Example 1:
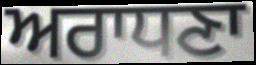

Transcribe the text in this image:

ਅਰਾਧਣਾ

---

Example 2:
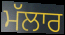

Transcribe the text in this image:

ਮੱਲਾਰ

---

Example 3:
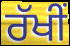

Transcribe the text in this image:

ਰੱਖੀਂ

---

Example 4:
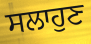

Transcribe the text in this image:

ਸਲਾਹੁਣ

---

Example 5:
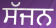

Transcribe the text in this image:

ਸੱਜਨ